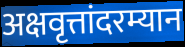
अक्षवृत्तांदरम्यान